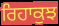
ਰਿਹਾਕੁਝ